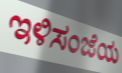
ಇಳಿಸಂಜೆಯ